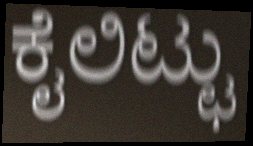
ಕೈಲಿಟ್ಟು